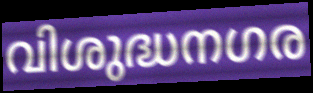
വിശുദ്ധനഗര